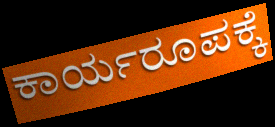
ಕಾರ್ಯರೂಪಕ್ಕೆ